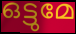
ഒട്ടുമേ